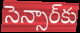
సెన్సార్‌కు